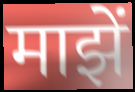
माझें